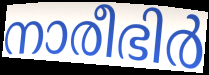
നാരീഭിർ